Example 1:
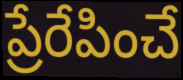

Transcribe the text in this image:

ప్రేరేపించే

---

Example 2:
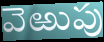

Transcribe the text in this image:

వెఱుపు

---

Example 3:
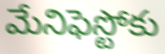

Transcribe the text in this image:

మేనిఫెస్టోకు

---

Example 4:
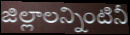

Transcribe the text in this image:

జిల్లాలన్నింటినీ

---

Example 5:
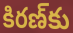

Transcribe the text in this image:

కిరణ్‌కు